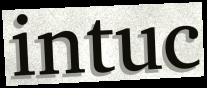
intuc